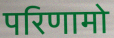
परिणामो